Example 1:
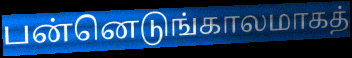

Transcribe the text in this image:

பன்னெடுங்காலமாகத்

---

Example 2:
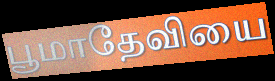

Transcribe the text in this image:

பூமாதேவியை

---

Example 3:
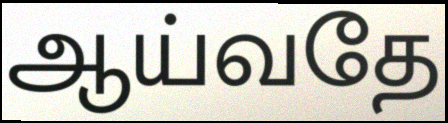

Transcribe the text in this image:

ஆய்வதே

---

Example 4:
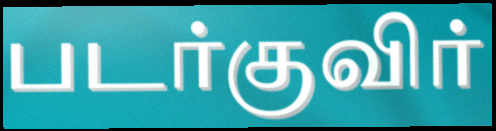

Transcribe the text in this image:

படர்குவிர்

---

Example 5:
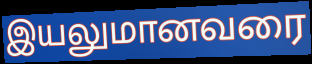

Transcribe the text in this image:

இயலுமானவரை